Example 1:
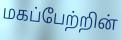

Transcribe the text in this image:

மகப்பேற்றின்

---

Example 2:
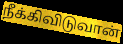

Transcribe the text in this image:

நீக்கிவிடுவான்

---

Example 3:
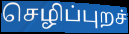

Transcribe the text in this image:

செழிப்புறச்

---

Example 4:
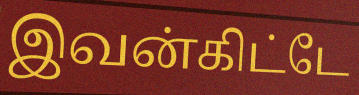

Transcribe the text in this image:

இவன்கிட்டே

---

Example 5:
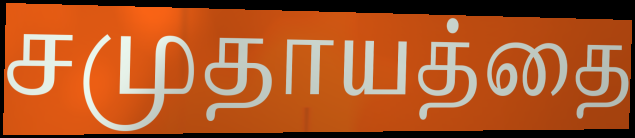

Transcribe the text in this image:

சமுதாயத்தை